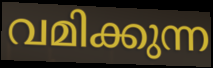
വമിക്കുന്ന